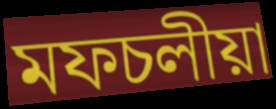
মফচলীয়া